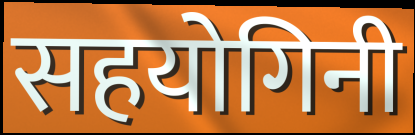
सहयोगिनी